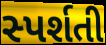
સ્પર્શતી